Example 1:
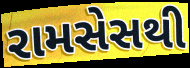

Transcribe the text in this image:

રામસેસથી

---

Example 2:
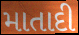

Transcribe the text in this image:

માતાદી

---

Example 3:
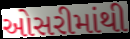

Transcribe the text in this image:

ઓસરીમાંથી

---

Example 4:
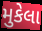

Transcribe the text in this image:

મુકેલા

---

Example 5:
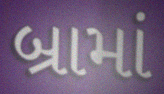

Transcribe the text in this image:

બ્રામાં